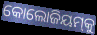
କୋଲୋଜିୟମ୍‍କୁ